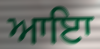
ਆਇਾ